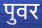
पुवर